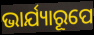
ଭାର୍ଯ୍ୟାରୂପେ